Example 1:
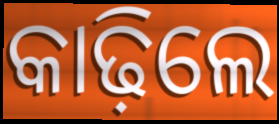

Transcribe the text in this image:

କାଢ଼ିଲେ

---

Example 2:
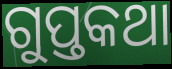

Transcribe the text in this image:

ଗୁପ୍ତକଥା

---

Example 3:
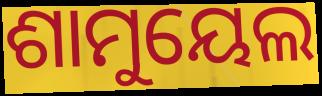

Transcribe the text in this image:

ଶାମୁୟେଲ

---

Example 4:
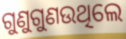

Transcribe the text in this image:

ଗୁଣୁଗୁଣଉଥିଲେ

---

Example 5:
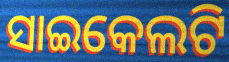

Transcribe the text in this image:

ସାଇକେଲଟି